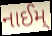
નાઈમ્